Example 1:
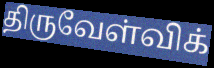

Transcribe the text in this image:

திருவேள்விக்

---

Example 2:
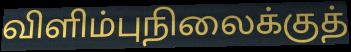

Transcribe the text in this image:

விளிம்புநிலைக்குத்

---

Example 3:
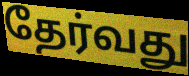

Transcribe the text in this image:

தேர்வது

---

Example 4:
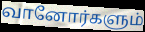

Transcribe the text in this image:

வானோர்களும்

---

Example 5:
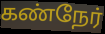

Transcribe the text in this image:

கண்நேர்